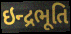
ઇન્દ્રભૂતિ